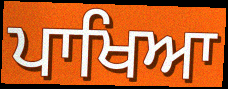
ਪਾਖਿਆ